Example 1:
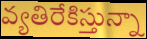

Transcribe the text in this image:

వ్యతిరేకిస్తున్నా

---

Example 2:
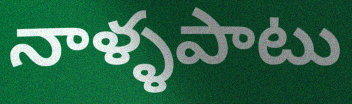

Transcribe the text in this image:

నాళ్ళపాటు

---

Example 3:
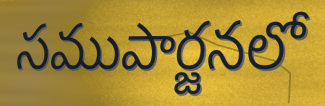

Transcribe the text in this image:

సముపార్జనలో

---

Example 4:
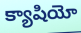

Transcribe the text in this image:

క్యాషియో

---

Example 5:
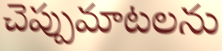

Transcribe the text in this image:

చెప్పుమాటలను